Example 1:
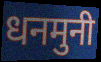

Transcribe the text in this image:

धनमुनी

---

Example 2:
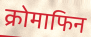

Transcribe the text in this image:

क्रोमाफिन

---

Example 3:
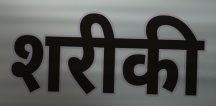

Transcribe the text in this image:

शरीकी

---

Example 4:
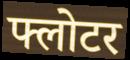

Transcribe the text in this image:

फ्लोटर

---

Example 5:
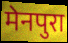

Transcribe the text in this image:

मेनपुरा